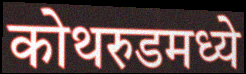
कोथरुडमध्ये